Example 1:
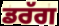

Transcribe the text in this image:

ਡਰੱਗ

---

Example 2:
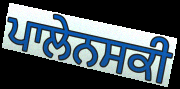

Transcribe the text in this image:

ਪਾਲੇਨਸਕੀ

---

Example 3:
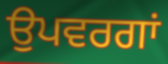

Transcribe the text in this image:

ਉਪਵਰਗਾਂ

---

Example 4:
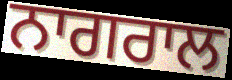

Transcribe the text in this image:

ਨਾਗਰਾਲ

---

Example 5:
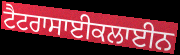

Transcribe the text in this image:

ਟੈਟਰਾਸਾਈਕਲਾਈਨ